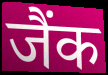
जैंक